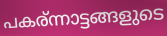
പകര്ന്നാട്ടങ്ങളുടെ